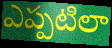
ఎప్పటిలా